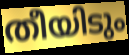
തീയിടും